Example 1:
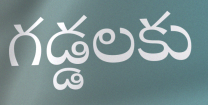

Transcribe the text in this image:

గడ్డలకు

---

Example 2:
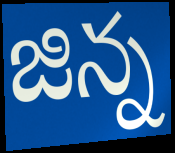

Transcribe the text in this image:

జిన్న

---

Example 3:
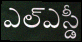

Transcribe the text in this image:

ఎల్ఎస్డీ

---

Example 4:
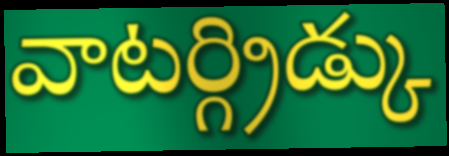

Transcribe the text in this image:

వాటర్గ్రిడ్కు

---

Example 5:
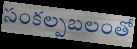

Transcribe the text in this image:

సంకల్పబలంతో